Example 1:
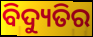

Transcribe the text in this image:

ବିଦ୍ୟୁତିର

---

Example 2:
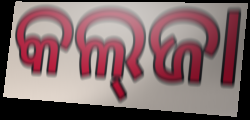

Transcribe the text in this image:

କଲ୍‌ଜା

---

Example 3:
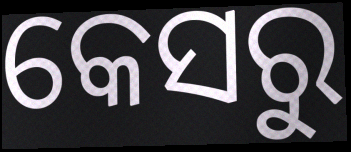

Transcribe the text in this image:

କେସରୁ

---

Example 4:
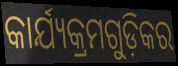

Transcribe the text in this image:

କାର୍ଯ୍ୟକ୍ରମଗୁଡ଼ିକର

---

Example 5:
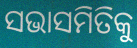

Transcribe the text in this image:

ସଭାସମିତିକୁ